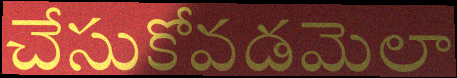
చేసుకోవడమెలా